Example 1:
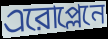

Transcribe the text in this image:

এরোপ্লেনে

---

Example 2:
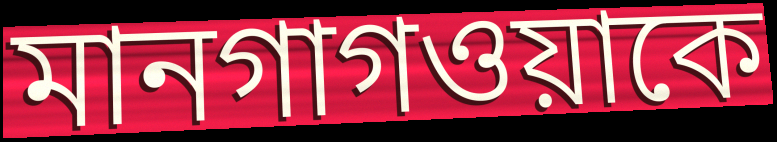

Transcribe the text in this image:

মানগাগওয়াকে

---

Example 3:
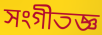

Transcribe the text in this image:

সংগীতজ্ঞ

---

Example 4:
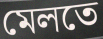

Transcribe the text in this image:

মেলতে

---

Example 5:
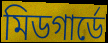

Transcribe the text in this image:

মিডগার্ডে